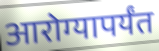
आरोग्यापर्यंत